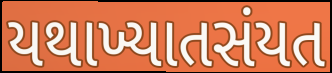
યથાખ્યાતસંયત